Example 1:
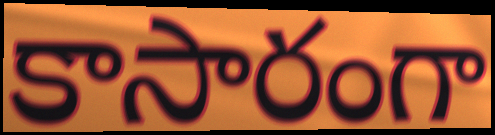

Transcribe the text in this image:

కాసారంగా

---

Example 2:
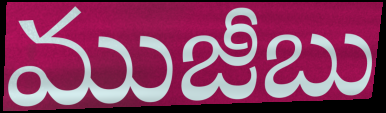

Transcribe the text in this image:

ముజీబు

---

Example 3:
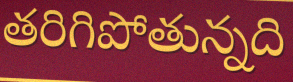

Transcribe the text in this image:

తరిగిపోతున్నది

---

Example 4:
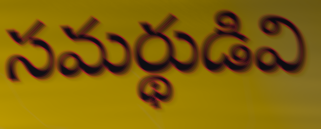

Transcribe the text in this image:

సమర్థుడివి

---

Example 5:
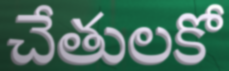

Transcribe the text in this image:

చేతులకో